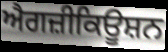
ਐਗਜ਼ੀਕਿਊਸ਼ਨ